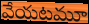
వేయటమూ